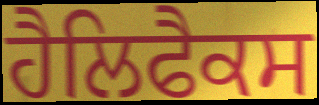
ਹੈਲਿਫੈਕਸ